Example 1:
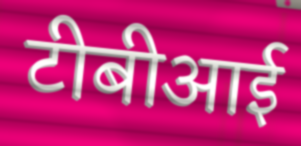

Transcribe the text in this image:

टीबीआई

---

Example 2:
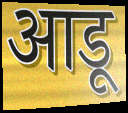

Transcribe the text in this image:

आडू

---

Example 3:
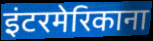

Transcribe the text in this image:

इंटरमेरिकाना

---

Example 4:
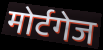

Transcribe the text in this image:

मोर्टगेज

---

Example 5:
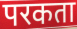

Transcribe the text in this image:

परकता